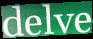
delve